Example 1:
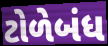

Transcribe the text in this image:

ટોળેબંધ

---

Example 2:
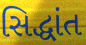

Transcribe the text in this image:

સિદ્ધાંત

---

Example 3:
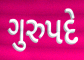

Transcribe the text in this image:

ગુરુપદે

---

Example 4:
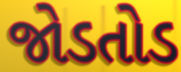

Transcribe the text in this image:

જોડતોડ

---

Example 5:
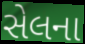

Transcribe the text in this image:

સેલના